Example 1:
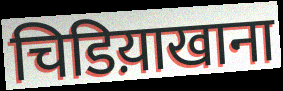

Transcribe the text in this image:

चिडिय़ाखाना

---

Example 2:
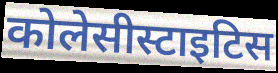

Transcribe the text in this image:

कोलेसीस्टाइटिस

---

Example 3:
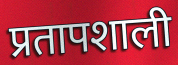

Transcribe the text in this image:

प्रतापशाली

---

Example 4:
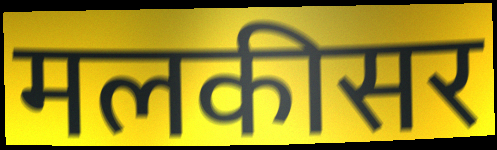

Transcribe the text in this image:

मलकीसर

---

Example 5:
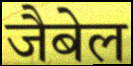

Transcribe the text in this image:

जैबेल